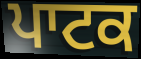
ਪਾਟਕ